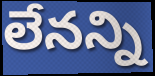
లేనన్ని